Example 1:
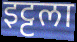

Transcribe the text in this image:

इट्टला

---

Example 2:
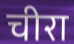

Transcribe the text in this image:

चीरा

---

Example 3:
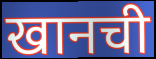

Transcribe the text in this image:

खानची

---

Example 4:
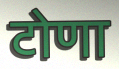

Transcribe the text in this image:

टोणा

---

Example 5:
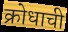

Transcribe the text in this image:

क्रोधाची